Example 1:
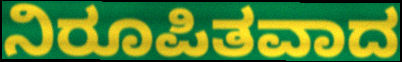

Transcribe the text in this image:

ನಿರೂಪಿತವಾದ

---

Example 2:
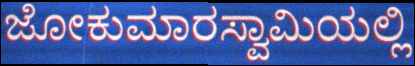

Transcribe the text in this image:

ಜೋಕುಮಾರಸ್ವಾಮಿಯಲ್ಲಿ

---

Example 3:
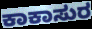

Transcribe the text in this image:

ಕಾಕಾಸುರ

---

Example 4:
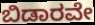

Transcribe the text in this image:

ಬಿಡಾರವೇ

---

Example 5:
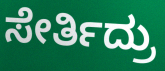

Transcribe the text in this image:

ಸೇರ್ತಿದ್ರು